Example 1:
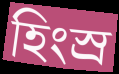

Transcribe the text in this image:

হিংস্ৰ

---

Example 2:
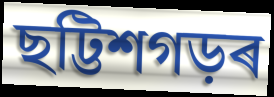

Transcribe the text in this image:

ছট্টিশগড়ৰ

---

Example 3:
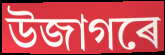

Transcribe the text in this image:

উজাগৰে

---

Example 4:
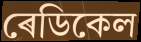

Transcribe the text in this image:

ৰেডিকেল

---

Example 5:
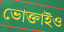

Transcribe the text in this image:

ভোক্তাইও